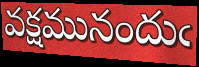
వక్షమునందుఁ